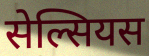
सेल्सियस